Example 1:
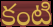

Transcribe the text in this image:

కంటి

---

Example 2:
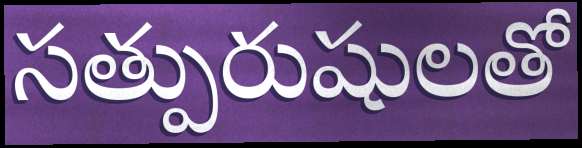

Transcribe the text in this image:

సత్పురుషులతో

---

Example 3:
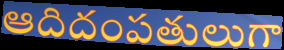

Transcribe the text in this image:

ఆదిదంపతులుగా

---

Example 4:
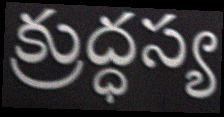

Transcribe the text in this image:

క్రుద్ధస్య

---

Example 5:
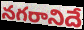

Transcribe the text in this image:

నగరానిదే